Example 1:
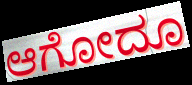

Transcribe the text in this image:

ಆಗೋದೂ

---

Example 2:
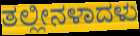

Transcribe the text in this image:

ತಲ್ಲೀನಳಾದಳು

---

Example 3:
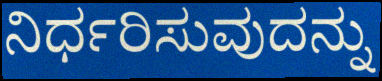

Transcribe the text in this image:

ನಿರ್ಧರಿಸುವುದನ್ನು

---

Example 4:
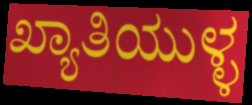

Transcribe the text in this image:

ಖ್ಯಾತಿಯುಳ್ಳ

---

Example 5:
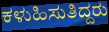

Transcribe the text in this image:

ಕಳುಹಿಸುತಿದ್ದರು